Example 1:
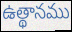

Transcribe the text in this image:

ఉత్థానము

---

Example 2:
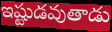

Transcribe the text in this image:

ఇష్టుడవుతాడు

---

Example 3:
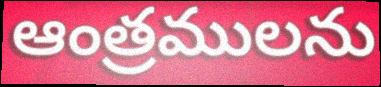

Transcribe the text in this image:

ఆంత్రములను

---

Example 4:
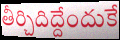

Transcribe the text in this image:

తీర్చిదిద్దేందుకే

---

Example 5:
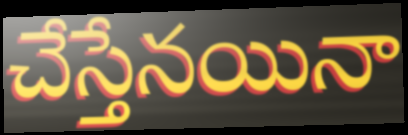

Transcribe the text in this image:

చేస్తేనయినా